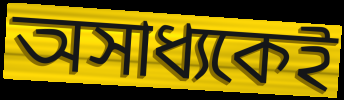
অসাধ্যকেই